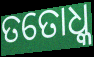
ତତୋଧ୍କ